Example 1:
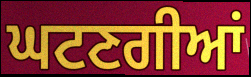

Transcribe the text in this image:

ਘਟਣਗੀਆਂ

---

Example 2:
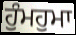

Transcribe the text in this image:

ਹੁੰਮਹੁਮਾ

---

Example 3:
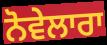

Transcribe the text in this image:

ਨੋਵੇਲਾਰਾ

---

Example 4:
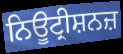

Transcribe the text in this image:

ਨਿਊਟ੍ਰੀਸ਼ਨਜ਼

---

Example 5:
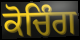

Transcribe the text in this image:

ਕੋਚਿੰਗ